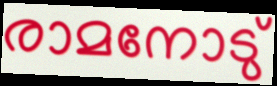
രാമനോടു്